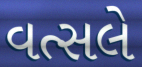
વત્સલે